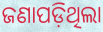
ଜଣାପଡ଼ିଥିଲା